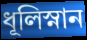
ধূলিস্নান